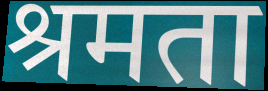
श्रमता